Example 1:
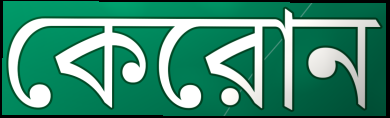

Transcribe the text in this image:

কেরোন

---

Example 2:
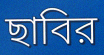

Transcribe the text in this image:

ছাবির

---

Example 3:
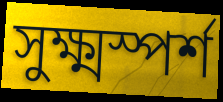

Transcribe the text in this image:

সুক্ষ্মস্পর্শ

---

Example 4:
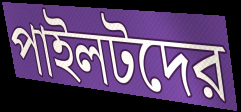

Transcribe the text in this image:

পাইলটদের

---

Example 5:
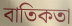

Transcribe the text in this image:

বাতিকতা